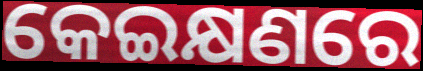
କେଇକ୍ଷଣରେ